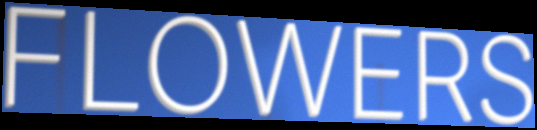
FLOWERS